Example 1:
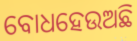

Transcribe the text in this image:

ବୋଧହେଉଅଛି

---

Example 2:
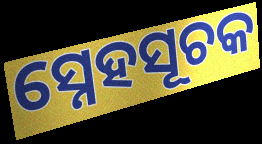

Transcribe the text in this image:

ସ୍ନେହସୂଚକ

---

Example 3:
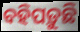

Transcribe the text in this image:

ବହିପଡ଼ୁଛି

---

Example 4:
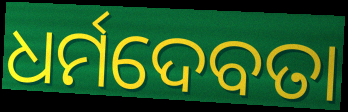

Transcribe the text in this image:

ଧର୍ମଦେବତା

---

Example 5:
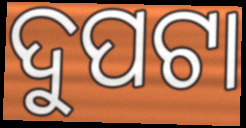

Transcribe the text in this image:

ଦୁପଟା